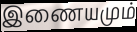
இணையமும்